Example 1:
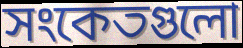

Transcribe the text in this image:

সংকেতগুলো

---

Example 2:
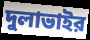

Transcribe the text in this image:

দুলাভাইর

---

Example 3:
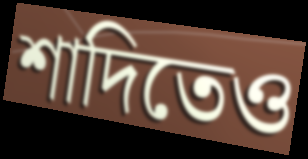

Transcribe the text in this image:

শাদিতেও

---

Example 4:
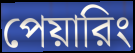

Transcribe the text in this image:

পেয়ারিং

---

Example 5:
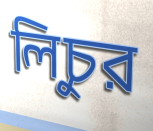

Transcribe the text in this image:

লিচুর